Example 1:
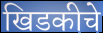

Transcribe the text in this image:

खिडकीचे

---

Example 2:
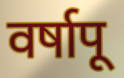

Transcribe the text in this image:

वर्षापू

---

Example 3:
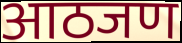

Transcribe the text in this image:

आठजण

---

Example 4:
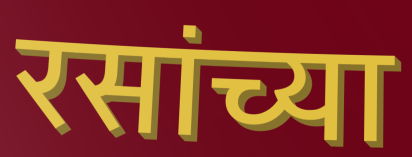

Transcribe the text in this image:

रसांच्या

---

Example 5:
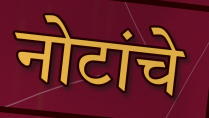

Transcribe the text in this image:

नोटांचे